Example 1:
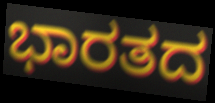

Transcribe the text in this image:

ಭಾರತದ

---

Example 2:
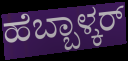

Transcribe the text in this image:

ಹೆಬ್ಬಾಳ್ಕರ್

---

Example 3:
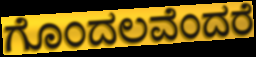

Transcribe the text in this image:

ಗೊಂದಲವೆಂದರೆ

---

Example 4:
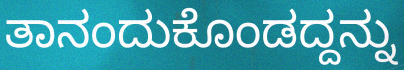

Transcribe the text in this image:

ತಾನಂದುಕೊಂಡದ್ದನ್ನು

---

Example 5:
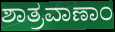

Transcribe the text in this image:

ಶಾತ್ರವಾಣಾಂ